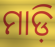
ମାଡ଼ି